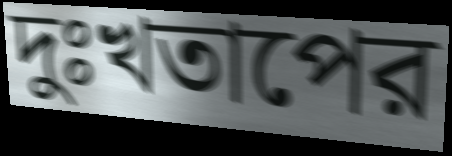
দুঃখতাপের